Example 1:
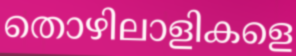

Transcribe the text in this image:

തൊഴിലാളികളെ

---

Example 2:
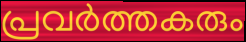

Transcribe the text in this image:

പ്രവർത്തകരും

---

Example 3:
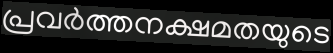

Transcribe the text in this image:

പ്രവർത്തനക്ഷമതയുടെ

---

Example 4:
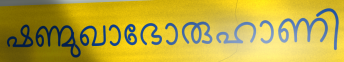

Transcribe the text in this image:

ഷണ്മുഖാഭോരുഹാണി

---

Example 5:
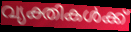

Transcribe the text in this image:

വ്യക്തികൾക്ക്